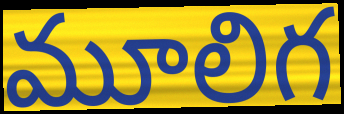
మూలిగ